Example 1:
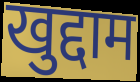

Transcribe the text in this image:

खुद्दाम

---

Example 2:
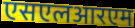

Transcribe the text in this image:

एसएलआरएम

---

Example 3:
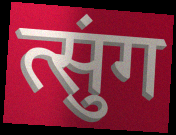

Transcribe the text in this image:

त्सुंग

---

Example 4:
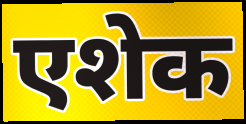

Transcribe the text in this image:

एशेक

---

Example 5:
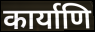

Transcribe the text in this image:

कार्याणि